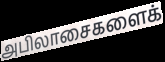
அபிலாசைகளைக்